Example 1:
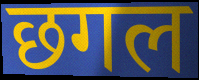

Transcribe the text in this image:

छगल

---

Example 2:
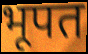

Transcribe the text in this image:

भूपत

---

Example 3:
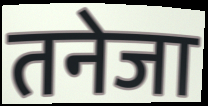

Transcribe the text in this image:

तनेजा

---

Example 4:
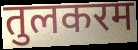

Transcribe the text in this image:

तुलकरम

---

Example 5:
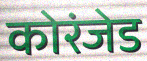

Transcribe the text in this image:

कोरंजेड